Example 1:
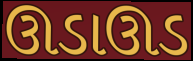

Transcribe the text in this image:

ઊડાઊડ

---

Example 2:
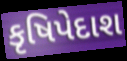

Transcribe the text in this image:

કૃષિપેદાશ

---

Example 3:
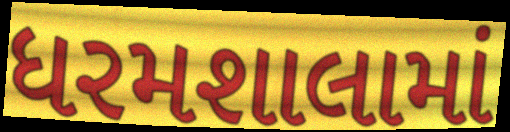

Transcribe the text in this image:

ધરમશાલામાં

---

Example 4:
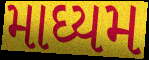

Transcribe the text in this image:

માઘ્યમ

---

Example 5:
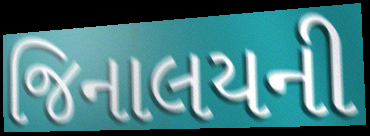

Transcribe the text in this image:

જિનાલયની